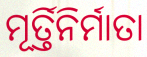
ମୂର୍ତ୍ତିନିର୍ମାତା